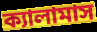
ক্যালামাস